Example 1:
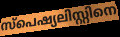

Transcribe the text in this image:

സ്പെഷ്യലിസ്റ്റിനെ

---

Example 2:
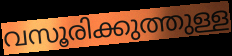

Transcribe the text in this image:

വസൂരിക്കുത്തുള്ള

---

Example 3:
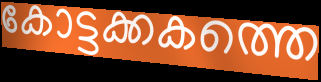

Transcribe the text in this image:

കോട്ടക്കകത്തെ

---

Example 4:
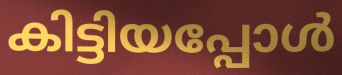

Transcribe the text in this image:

കിട്ടിയപ്പോൾ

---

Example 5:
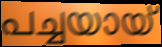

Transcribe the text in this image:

പച്ചയായ്